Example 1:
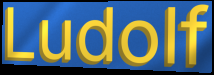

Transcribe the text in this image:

Ludolf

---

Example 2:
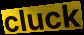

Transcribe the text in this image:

cluck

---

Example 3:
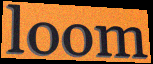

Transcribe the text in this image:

loom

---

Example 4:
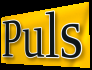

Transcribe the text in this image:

Puls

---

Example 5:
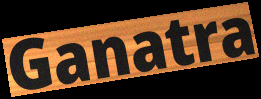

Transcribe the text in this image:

Ganatra